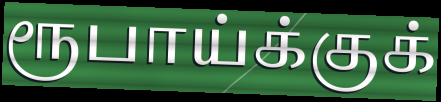
ரூபாய்க்குக்